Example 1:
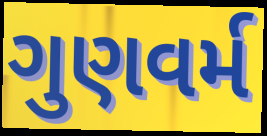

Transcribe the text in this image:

ગુણવર્મ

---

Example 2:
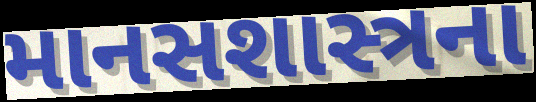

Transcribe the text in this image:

માનસશાસ્ત્રના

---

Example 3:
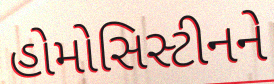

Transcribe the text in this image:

હોમોસિસ્ટીનને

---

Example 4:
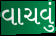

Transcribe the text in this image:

વાચવું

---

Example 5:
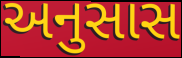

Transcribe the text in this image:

અનુસાસ